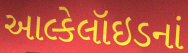
આલ્કેલૉઇડનાં